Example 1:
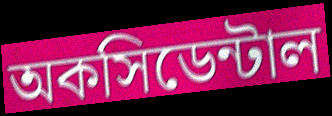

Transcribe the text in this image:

অকসিডেন্টাল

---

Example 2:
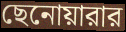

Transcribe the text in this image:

ছেনোয়ারার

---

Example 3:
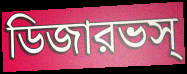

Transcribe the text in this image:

ডিজারভস্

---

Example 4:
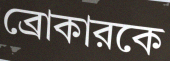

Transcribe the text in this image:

ব্রোকারকে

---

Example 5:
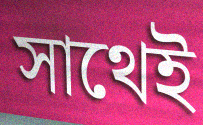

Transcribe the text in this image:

সাথেই